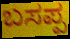
ಬಸಪ್ಪ